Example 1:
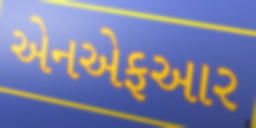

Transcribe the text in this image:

એનએફઆર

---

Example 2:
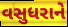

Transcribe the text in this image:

વસુધરાને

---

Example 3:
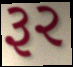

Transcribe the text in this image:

રૂર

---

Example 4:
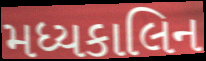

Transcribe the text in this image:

મધ્યકાલિન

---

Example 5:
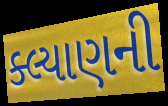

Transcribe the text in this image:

ક્લ્યાણની